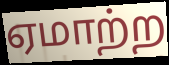
ஏமாற்ற